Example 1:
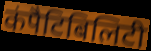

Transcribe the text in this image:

कंपैटिबिलिटी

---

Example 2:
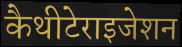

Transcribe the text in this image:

कैथीटेराइजेशन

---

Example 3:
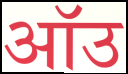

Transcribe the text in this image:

ऑउ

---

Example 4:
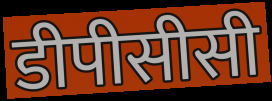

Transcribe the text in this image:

डीपीसीसी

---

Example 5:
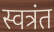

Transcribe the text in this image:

स्वत्रंत